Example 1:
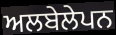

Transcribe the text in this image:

ਅਲਬੇਲੇਪਨ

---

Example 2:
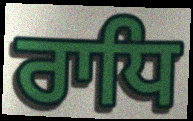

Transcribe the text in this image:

ਰਾਧਿ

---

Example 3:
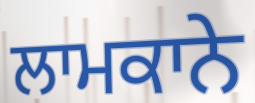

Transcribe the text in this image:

ਲਾਮਕਾਨੇ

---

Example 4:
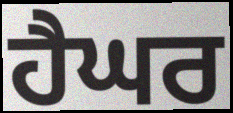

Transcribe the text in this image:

ਹੈਘਰ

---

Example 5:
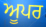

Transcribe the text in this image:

ਅੂਪਰ